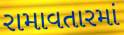
રામાવતારમાં